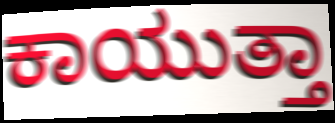
ಕಾಯುತ್ತಾ